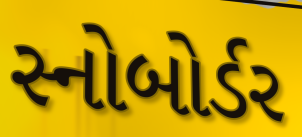
સ્નોબોર્ડર